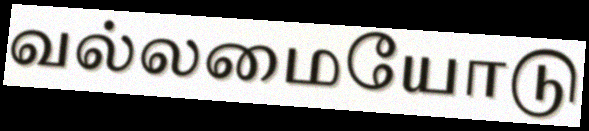
வல்லமையோடு